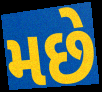
મછે